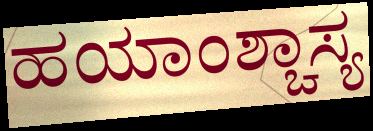
ಹಯಾಂಶ್ಚಾಸ್ಯ